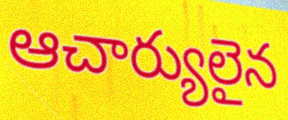
ఆచార్యులైన